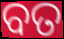
ବତ